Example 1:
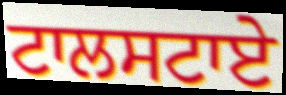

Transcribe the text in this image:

ਟਾਲਸਟਾਏ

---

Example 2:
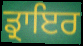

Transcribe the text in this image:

ਡ੍ਰਾਇਰ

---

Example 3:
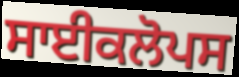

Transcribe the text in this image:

ਸਾਈਕਲੋਪਸ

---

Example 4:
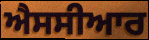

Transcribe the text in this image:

ਐਸਸੀਆਰ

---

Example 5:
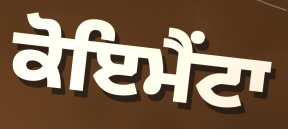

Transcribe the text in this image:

ਕੋਇਮੈਂਟਾ